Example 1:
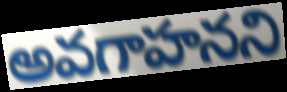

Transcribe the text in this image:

అవగాహనని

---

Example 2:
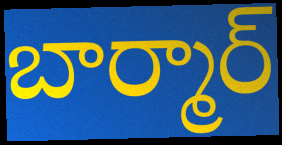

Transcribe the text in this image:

బార్మార్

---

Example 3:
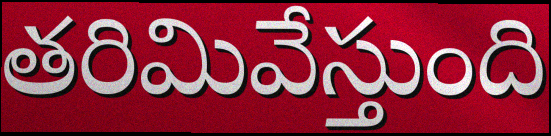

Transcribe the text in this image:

తరిమివేస్తుంది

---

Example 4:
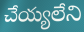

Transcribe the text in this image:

చేయ్యలేని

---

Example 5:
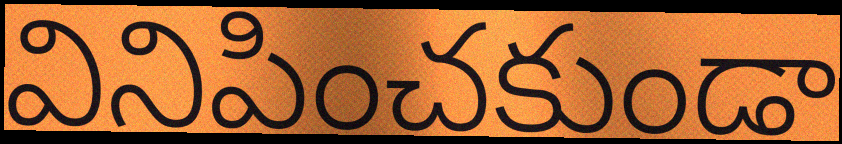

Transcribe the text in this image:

వినిపించకుండా